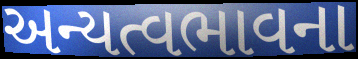
અન્યત્વભાવના